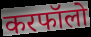
करफॉलो